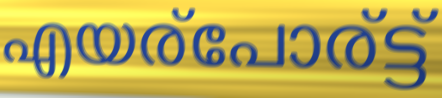
എയര്പോര്ട്ട്